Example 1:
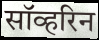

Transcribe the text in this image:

सॉव्हरिन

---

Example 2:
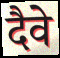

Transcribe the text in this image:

दैवे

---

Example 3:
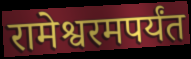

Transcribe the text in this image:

रामेश्वरमपर्यंत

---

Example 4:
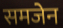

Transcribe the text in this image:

समजेन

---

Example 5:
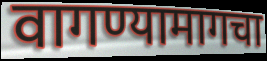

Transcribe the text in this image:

वागण्यामागचा